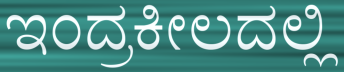
ಇಂದ್ರಕೀಲದಲ್ಲಿ